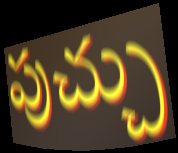
పుచ్చు